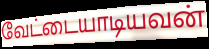
வேட்டையாடியவன்